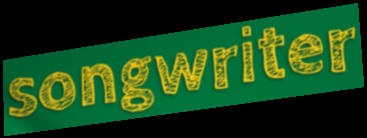
songwriter